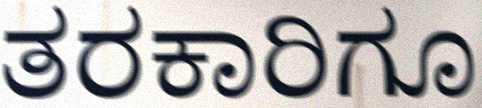
ತರಕಾರಿಗೂ